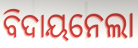
ବିଦାୟନେଲା